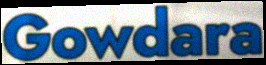
Gowdara